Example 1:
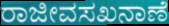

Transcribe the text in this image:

ರಾಜೀವಸಖನಾಣೆ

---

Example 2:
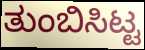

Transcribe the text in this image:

ತುಂಬಿಸಿಟ್ಟ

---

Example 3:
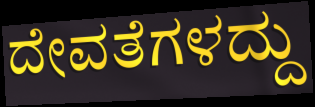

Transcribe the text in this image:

ದೇವತೆಗಳದ್ದು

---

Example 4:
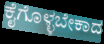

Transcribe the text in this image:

ಕೈಗೊಳ್ಳಬೇಕಾದ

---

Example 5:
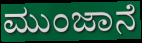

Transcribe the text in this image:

ಮುಂಜಾನೆ